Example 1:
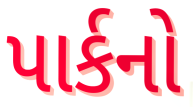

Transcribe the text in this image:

પાર્કનો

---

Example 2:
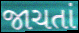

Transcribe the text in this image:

જાચતાં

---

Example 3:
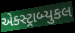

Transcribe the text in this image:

એક્સ્ટ્રાબ્યુકલ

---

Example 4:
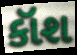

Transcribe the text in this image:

કૉશ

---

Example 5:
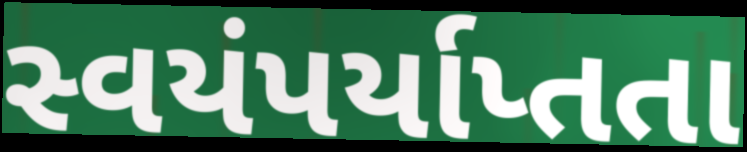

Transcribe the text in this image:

સ્વયંપર્યાપ્તતા